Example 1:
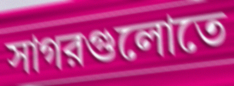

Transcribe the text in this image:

সাগরগুলোতে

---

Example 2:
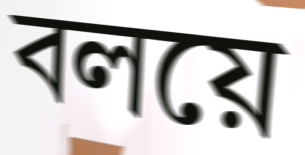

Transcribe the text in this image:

বলয়ে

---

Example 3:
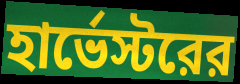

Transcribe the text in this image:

হার্ভেস্টরের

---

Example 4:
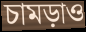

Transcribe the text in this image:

চামড়াও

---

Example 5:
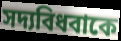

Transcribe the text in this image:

সদ্যবিধবাকে